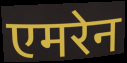
एमरेन